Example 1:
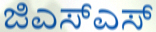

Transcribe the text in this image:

ಜಿಎಸ್ಎಸ್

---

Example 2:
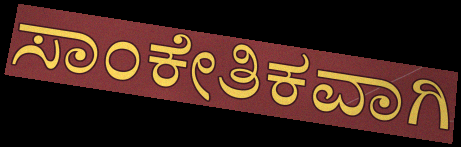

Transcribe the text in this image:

ಸಾಂಕೇತಿಕವಾಗಿ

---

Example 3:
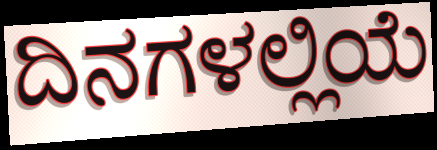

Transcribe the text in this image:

ದಿನಗಳಲ್ಲಿಯೆ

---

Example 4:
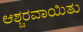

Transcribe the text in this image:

ಆಶ್ಚರವಾಯಿತು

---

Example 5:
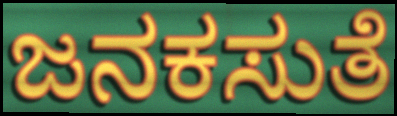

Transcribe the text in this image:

ಜನಕಸುತೆ